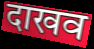
दाखव